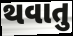
થવાતુ